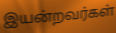
இயன்றவர்கள்